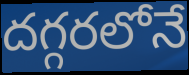
దగ్గరలోనే